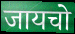
जायचो